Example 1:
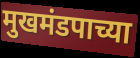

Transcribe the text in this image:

मुखमंडपाच्या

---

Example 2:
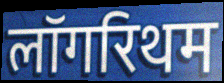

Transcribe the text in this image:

लॉगरिथम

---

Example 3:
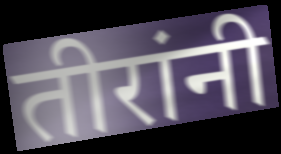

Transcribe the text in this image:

तीरांनी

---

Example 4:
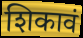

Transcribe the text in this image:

शिकावं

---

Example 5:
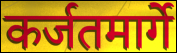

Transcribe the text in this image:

कर्जतमार्गे